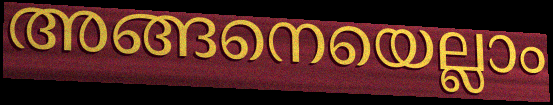
അങ്ങനെയെല്ലാം